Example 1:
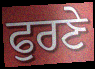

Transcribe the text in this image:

ਫੁਰਣੇ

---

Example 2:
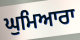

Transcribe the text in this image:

ਘੁਮਿਆਰਾ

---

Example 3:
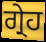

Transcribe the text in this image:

ਗ੍ਰੇਹ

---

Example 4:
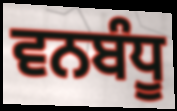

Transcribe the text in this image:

ਵਨਬੰਧੂ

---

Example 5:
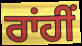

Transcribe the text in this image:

ਰਾਂਹੀਂ